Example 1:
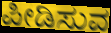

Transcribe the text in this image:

ಪೀಡಿಸುವ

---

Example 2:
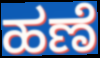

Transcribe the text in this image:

ಹಣೆ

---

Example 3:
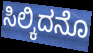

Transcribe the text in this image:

ಸಿಲ್ಕಿದನೊ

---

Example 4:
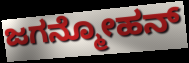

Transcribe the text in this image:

ಜಗನ್ಮೋಹನ್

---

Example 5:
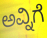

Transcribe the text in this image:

ಅವ್ನಿಗೆ